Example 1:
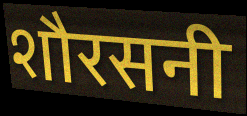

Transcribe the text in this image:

शौरसनी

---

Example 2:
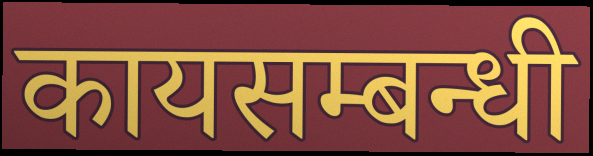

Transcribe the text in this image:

कायसम्बन्धी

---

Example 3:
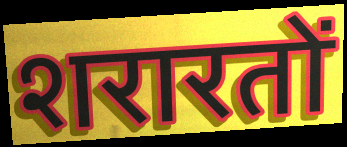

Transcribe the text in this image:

शरारतों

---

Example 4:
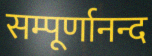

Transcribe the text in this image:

सम्पूर्णानन्द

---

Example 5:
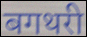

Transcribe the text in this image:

बगथरी